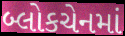
બ્લોકચેનમાં